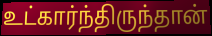
உட்கார்ந்திருந்தான்